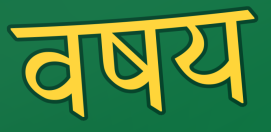
वषय